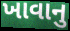
ખાવાનુ